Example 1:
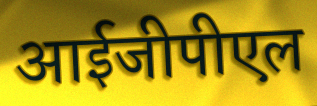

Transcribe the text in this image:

आईजीपीएल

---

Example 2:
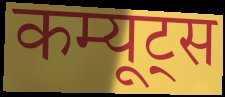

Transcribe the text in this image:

कम्यूट्स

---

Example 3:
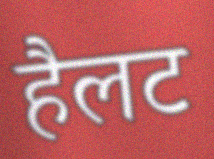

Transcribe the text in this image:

हैलट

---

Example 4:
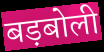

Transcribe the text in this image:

बड़बोली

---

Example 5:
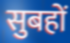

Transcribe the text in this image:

सुबहों